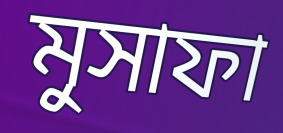
মুসাফা